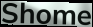
Shome